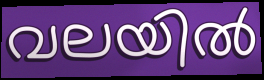
വലയിൽ